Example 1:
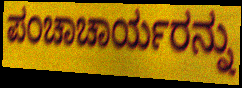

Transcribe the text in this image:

ಪಂಚಾಚಾರ್ಯರನ್ನು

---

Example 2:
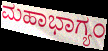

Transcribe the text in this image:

ಮಹಾಭಾಗ್ಯಂ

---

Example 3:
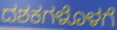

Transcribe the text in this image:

ದಶಕಗಳೊಳಗೆ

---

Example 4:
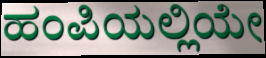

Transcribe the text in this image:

ಹಂಪಿಯಲ್ಲಿಯೇ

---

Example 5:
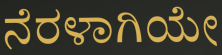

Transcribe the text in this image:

ನೆರಳಾಗಿಯೇ